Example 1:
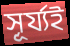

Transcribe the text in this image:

সূৰ্য্যই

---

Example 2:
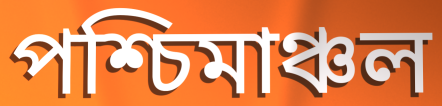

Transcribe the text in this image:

পশ্চিমাঞ্চল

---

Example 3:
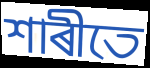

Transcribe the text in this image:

শাৰীতে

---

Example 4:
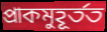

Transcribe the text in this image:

প্ৰাকমুহূৰ্তত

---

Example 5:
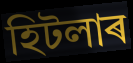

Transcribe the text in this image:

হিটলাৰ